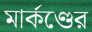
মার্কণ্ডের